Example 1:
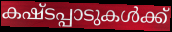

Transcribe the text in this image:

കഷ്ടപ്പാടുകൾക്ക്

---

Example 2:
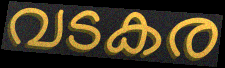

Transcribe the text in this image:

വടകര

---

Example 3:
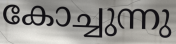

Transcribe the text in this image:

കോച്ചുന്നു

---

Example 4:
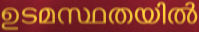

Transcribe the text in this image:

ഉടമസ്ഥതയിൽ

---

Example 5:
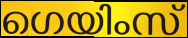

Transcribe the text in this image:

ഗെയിംസ്